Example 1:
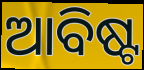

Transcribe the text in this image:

ଆବିଷ୍ଟ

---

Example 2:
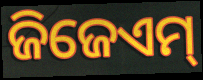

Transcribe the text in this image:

ଜିଜେଏମ୍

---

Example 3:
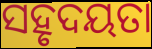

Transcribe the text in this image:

ସହୃଦୟତା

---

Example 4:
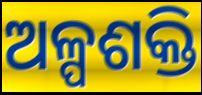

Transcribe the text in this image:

ଅଳ୍ପଶକ୍ତି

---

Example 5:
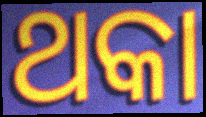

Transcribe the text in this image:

ଥକା